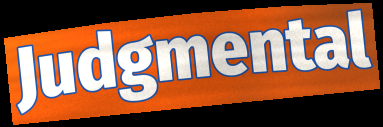
Judgmental